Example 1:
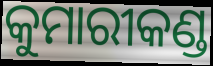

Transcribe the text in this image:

କୁମାରୀକଣ୍ଡ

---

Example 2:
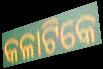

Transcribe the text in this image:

କଳାଟିକେ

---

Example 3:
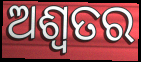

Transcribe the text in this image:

ଅଶ୍ୱତର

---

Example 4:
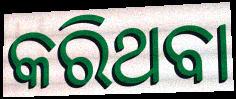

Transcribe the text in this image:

କରିଥବା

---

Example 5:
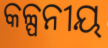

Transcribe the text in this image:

କଳ୍ପନୀୟ